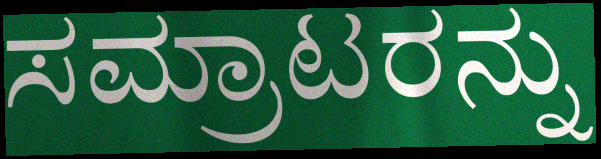
ಸಮ್ರಾಟರನ್ನು